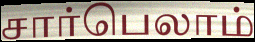
சார்பெலாம்